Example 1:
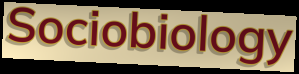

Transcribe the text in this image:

Sociobiology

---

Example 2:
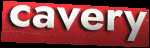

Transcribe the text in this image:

cavery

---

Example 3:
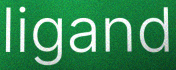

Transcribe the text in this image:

ligand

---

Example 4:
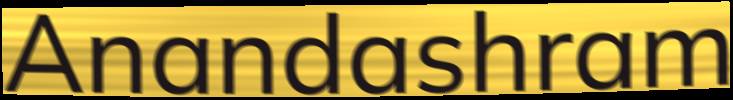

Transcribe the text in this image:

Anandashram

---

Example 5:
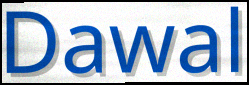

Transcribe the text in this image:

Dawal